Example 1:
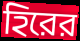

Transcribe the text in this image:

হিরের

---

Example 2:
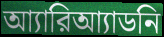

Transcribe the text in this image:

আ্যারিআ্যাডনি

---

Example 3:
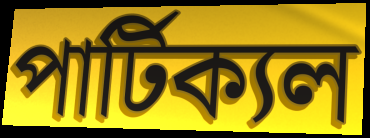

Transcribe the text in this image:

পার্টিক্যল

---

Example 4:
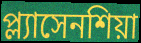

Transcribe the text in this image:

প্ল্যাসেনশিয়া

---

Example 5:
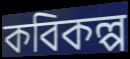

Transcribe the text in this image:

কবিকল্প